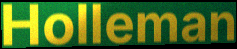
Holleman